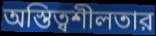
অস্তিত্বশীলতার